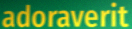
adoraverit